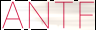
ANTF